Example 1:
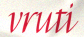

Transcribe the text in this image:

vruti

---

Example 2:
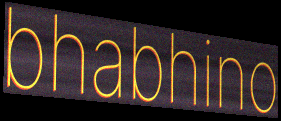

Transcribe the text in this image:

bhabhino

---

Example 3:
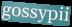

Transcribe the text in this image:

gossypii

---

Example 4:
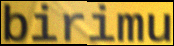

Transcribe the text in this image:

birimu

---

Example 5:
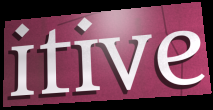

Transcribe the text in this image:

itive